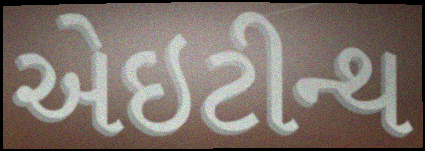
એઇટીન્થ